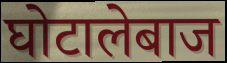
घोटालेबाज